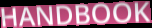
HANDBOOK